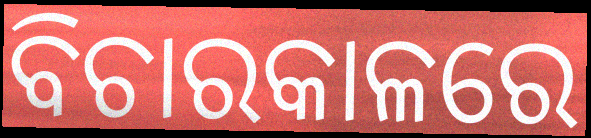
ବିଚାରକାଳରେ